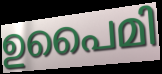
ഉപൈമി